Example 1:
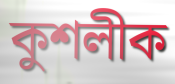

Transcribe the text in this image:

কুশলীক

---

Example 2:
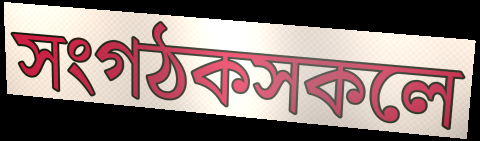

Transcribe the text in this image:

সংগঠকসকলে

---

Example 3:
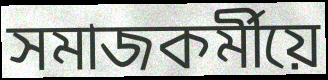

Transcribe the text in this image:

সমাজকৰ্মীয়ে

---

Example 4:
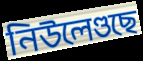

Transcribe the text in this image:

নিউলেণ্ডছে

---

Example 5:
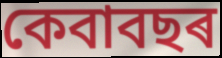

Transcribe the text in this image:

কেবাবছৰ